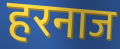
हरनाज